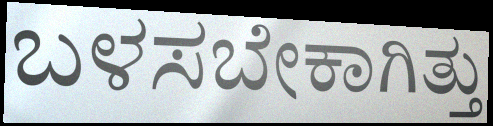
ಬಳಸಬೇಕಾಗಿತ್ತು